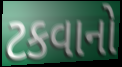
ટકવાનો